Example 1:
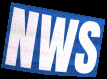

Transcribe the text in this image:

NWS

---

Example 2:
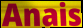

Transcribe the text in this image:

Anais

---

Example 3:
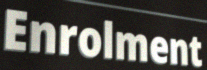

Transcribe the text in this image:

Enrolment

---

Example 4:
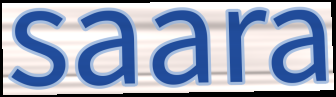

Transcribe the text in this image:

saara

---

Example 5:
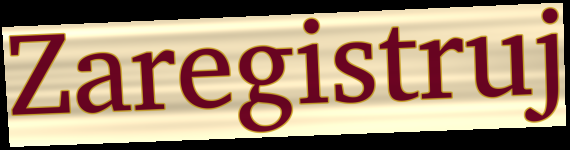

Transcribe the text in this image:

Zaregistruj